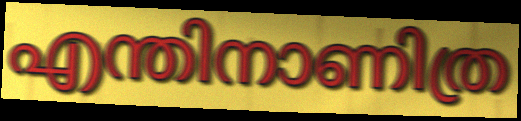
എന്തിനാണിത്ര